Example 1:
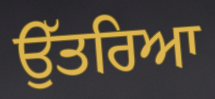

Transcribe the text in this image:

ਉੱਤਰਿਆ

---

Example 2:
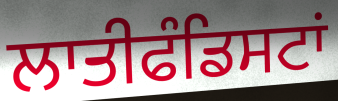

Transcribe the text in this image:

ਲਾਤੀਫੰਡਿਸਟਾਂ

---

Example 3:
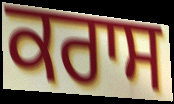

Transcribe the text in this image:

ਕਰਾਸ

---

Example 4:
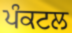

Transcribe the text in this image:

ਪੰਕਟਲ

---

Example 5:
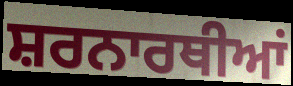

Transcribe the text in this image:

ਸ਼ਰਨਾਰਥੀਆਂ